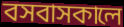
বসবাসকালে